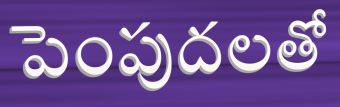
పెంపుదలతో